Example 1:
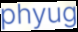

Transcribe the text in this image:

phyug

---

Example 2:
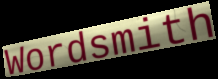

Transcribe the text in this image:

Wordsmith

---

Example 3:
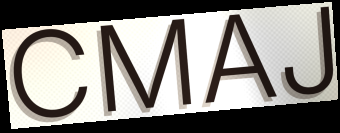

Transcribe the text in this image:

CMAJ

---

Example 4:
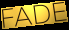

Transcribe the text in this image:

FADE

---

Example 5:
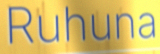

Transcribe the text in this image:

Ruhuna